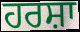
ਹਰਸ਼ਾ